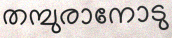
തമ്പുരാനോടു